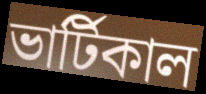
ভার্টিকাল